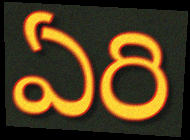
ఏరి